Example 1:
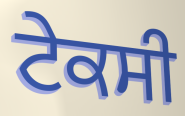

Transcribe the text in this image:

ਟੇਕਸੀ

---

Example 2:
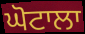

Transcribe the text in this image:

ਘੋਟਾਲਾ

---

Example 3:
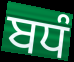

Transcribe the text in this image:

ਬਧੰ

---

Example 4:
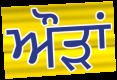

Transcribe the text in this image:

ਔੜਾਂ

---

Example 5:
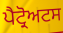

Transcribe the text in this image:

ਪੈਟ੍ਰੋਅਟਸ